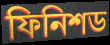
ফিনিশড